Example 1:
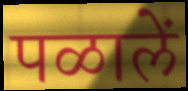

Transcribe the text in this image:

पळालें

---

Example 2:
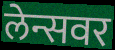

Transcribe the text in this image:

लेन्सवर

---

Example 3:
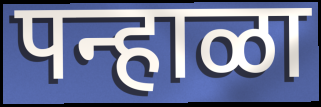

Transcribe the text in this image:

पन्हाळा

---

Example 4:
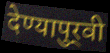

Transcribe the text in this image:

देण्यापुर्वी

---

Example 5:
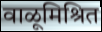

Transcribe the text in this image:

वाळूमिश्रित